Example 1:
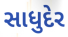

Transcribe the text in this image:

સાધુદેર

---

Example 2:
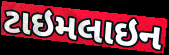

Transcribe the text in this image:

ટાઇમલાઇન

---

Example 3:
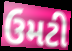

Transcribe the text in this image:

ઉમટી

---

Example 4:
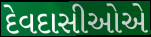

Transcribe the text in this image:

દેવદાસીઓએ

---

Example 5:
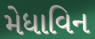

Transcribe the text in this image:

મેધાવિન